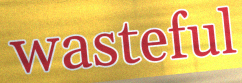
wasteful